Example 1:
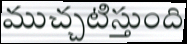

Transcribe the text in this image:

ముచ్చటిస్తుంది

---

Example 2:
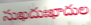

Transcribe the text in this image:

సుఖదుఃఖాదుల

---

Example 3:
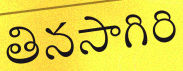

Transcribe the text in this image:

తినసాగిరి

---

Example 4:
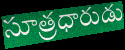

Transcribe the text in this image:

సూత్రధారుడు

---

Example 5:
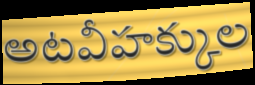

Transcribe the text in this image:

అటవీహక్కుల